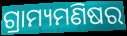
ଗ୍ରାମ୍ୟମଣିଷର